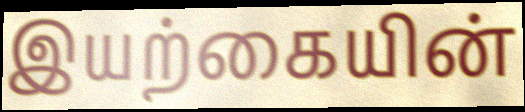
இயற்கையின்